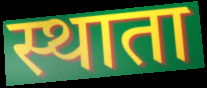
स्थाता